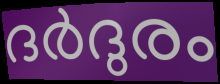
ദർദുരം